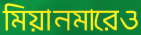
মিয়ানমারেও